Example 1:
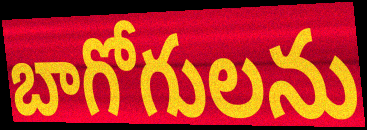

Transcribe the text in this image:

బాగోగులను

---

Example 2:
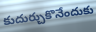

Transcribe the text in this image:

కుదుర్చుకొనేందుకు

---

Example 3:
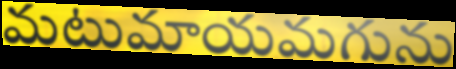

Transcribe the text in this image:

మటుమాయమగును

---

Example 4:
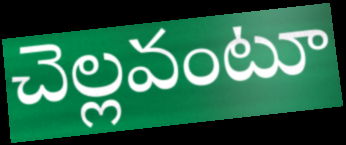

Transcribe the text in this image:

చెల్లవంటూ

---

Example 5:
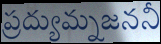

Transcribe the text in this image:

ప్రద్యుమ్నజననీ